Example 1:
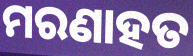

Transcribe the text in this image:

ମରଣାହତ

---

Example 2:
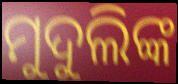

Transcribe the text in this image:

ମୁଦୁଲିଙ୍କ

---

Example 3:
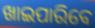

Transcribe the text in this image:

ଖାଇପାରିବେ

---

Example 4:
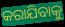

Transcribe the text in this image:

କରାଯିବାକୁ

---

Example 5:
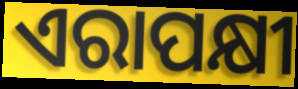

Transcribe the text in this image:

ଏରାପକ୍ଷୀ